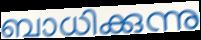
ബാധിക്കുന്നു